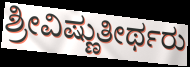
ಶ್ರೀವಿಷ್ಣುತೀರ್ಥರು